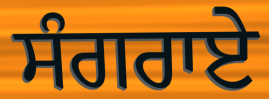
ਸੰਗਰਾਏ